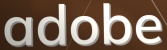
adobe